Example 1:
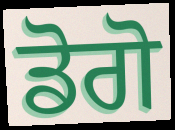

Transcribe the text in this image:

ਡੋਗੋ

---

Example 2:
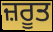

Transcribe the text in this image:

ਜ਼ਰੂਤ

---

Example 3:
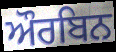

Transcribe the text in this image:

ਔਰਬਿਨ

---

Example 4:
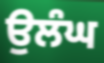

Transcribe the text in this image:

ਉਲੰਘ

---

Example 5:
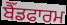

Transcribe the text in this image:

ਬੈੱਡਫਾਰਮ